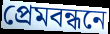
প্রেমবন্ধনে